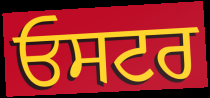
ਓਸਟਰ